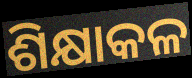
ଶିକ୍ଷାକଳ